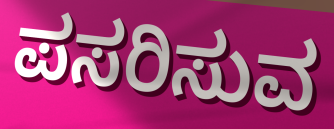
ಪಸರಿಸುವ